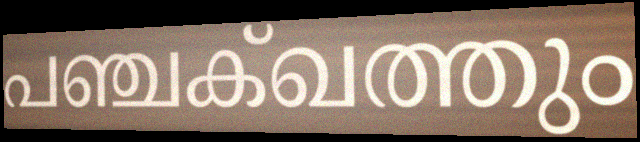
പഞ്ചക്ഖത്തും